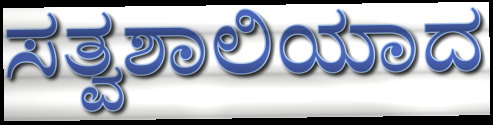
ಸತ್ವಶಾಲಿಯಾದ